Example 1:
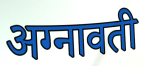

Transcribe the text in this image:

अग्नावती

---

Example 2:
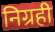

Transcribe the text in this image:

निग्रही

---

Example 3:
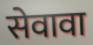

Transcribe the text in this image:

सेवावा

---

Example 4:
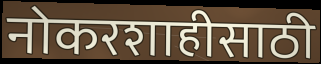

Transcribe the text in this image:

नोकरशाहीसाठी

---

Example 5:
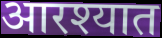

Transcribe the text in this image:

आरश्यात